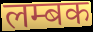
लम्बक